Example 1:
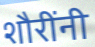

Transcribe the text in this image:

शौरींनी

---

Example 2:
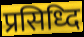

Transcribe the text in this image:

प्रसिध्दि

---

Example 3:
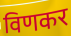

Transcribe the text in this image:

विणकर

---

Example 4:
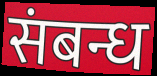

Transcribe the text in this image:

संबन्ध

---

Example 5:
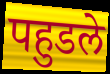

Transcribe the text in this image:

पहुडले